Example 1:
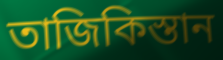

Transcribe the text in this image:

তাজিকিস্তান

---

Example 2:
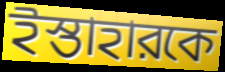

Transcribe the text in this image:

ইস্তাহারকে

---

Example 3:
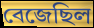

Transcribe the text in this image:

বেজেছিল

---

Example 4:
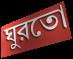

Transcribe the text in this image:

ঘুরতো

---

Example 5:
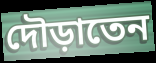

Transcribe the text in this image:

দৌড়াতেন